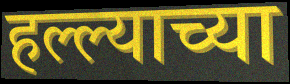
हल्ल्याच्या